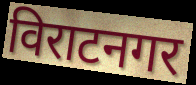
विराटनगर